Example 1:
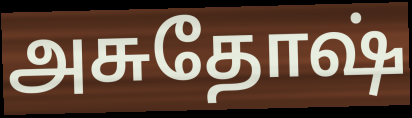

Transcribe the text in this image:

அசுதோஷ்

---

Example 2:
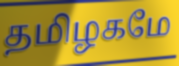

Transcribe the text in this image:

தமிழகமே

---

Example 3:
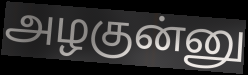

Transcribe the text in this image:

அழகுன்னு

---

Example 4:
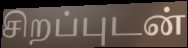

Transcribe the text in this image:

சிறப்புடன்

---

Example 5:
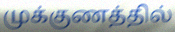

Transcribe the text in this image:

முக்குணத்தில்